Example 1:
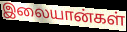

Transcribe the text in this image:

இலையான்கள்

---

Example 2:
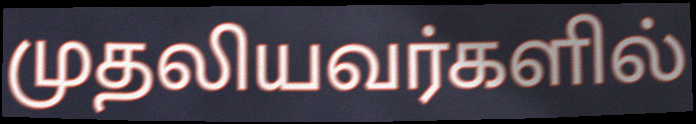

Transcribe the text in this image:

முதலியவர்களில்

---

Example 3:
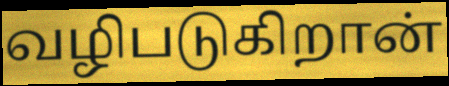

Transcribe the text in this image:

வழிபடுகிறான்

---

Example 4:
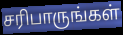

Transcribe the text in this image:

சரிபாருங்கள்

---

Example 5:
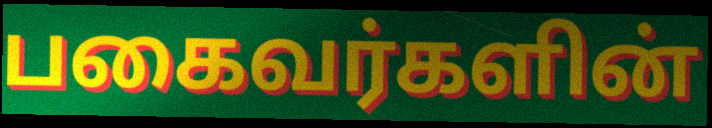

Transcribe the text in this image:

பகைவர்களின்